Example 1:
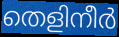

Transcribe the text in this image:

തെളിനീർ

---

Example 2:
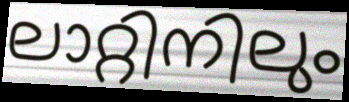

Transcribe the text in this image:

ലാറ്റിനിലും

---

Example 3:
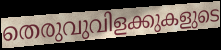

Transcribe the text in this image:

തെരുവുവിളക്കുകളുടെ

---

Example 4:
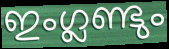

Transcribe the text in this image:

ഇംഗ്ലണ്ടും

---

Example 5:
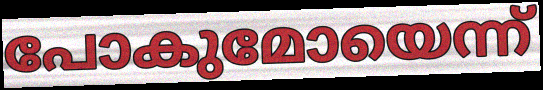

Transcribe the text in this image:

പോകുമോയെന്ന്